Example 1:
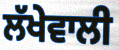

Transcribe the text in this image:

ਲੱਖੇਵਾਲੀ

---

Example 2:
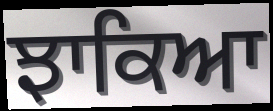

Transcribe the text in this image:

ਝਾਕਿਆ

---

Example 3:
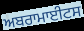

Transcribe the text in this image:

ਅਬਰਾਮਾਈਟਸ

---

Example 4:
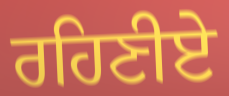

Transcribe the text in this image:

ਰਹਿਣੀਏ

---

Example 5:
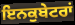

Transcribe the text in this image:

ਇਨਕੁਬੇਟਰਾਂ